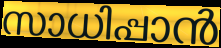
സാധിപ്പാൻ